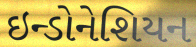
ઇન્ડોનેશિયન